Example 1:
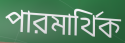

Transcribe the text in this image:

পারমার্থিক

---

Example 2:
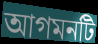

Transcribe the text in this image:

আগমনটি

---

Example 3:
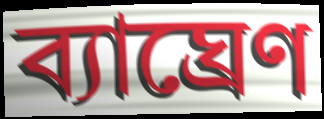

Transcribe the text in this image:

ব্যাঘ্রেণ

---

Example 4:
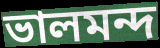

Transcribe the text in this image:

ভালমন্দ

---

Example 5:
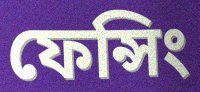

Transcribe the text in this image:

ফেন্সিং